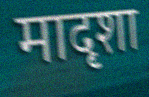
मादृशा